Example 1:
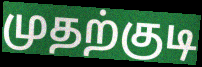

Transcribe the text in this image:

முதற்குடி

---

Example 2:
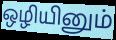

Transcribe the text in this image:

ஒழியினும்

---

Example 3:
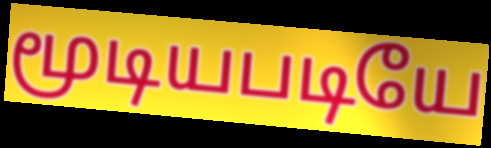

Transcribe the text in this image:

மூடியபடியே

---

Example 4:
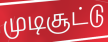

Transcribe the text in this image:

முடிசூட்டு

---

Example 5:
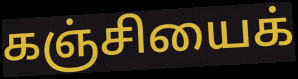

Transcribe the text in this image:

கஞ்சியைக்